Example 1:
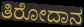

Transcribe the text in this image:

ತಿರೋದಾನ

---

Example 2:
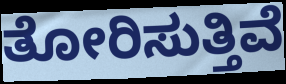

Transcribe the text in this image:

ತೋರಿಸುತ್ತಿವೆ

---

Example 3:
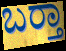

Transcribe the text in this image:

ಬರ‍್ತಾ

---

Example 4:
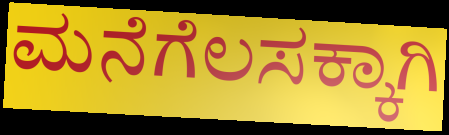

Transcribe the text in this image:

ಮನೆಗೆಲಸಕ್ಕಾಗಿ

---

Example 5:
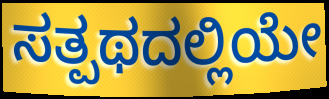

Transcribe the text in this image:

ಸತ್ಪಥದಲ್ಲಿಯೇ